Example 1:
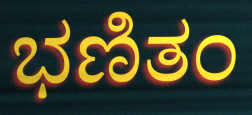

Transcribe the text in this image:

ಭಣಿತಂ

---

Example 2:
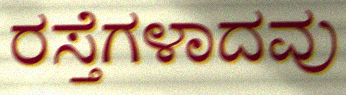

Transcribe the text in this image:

ರಸ್ತೆಗಳಾದವು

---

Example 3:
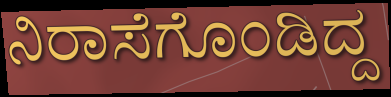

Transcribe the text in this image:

ನಿರಾಸೆಗೊಂಡಿದ್ದ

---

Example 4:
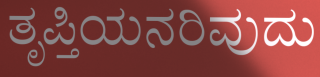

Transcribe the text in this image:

ತೃಪ್ತಿಯನರಿವುದು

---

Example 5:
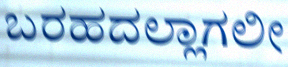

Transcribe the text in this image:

ಬರಹದಲ್ಲಾಗಲೀ